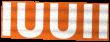
IUUII